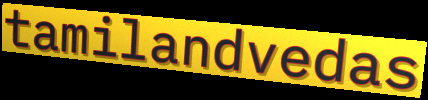
tamilandvedas